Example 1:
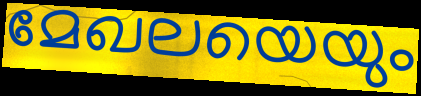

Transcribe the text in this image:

മേഖലയെയും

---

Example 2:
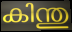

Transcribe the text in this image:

കിന്തു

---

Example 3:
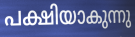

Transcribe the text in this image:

പക്ഷിയാകുന്നു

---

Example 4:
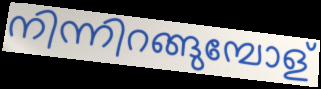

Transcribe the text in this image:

നിന്നിറങ്ങുമ്പോള്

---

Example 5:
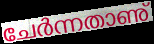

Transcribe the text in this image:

ചേർന്നതാണു്